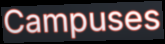
Campuses